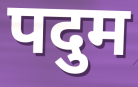
पदुम